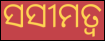
ସସୀମତ୍ୱ